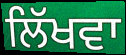
ਲਿੱਖਵਾ